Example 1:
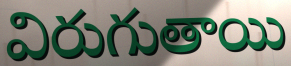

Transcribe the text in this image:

విరుగుతాయి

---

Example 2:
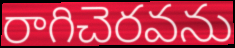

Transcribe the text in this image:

రాగిచెరవను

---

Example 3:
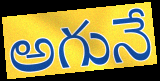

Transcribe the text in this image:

అగునే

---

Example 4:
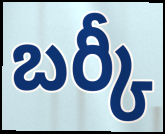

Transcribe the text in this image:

బర్కీ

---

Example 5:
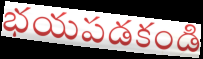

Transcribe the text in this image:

భయపడకండి